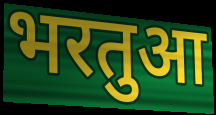
भरतुआ